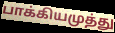
பாக்கியமுத்து